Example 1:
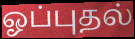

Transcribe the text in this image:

ஓப்புதல்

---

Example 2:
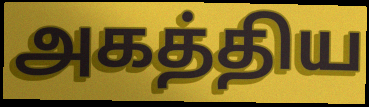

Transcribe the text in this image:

அகத்திய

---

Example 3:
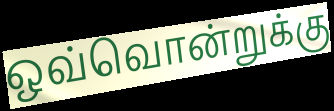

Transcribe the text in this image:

ஒவ்வொன்றுக்கு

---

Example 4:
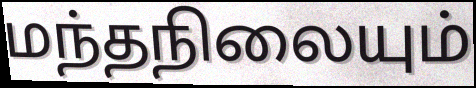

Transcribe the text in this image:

மந்தநிலையும்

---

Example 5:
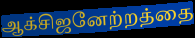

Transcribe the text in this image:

ஆக்சிஜனேற்றத்தை